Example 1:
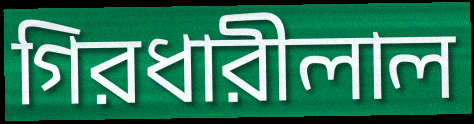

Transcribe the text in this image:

গিরধারীলাল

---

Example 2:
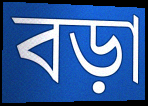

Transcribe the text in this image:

বড়া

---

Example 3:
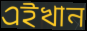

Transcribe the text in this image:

এইখান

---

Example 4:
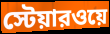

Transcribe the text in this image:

স্টেয়ারওয়ে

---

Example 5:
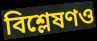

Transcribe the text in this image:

বিশ্লেষণও